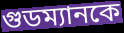
গুডম্যানকে